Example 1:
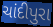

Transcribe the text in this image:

ચાંદીપુરા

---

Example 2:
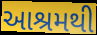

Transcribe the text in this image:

આશ્રમથી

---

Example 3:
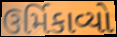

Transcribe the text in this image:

ઉર્મિકાવ્યો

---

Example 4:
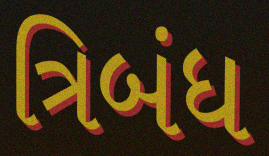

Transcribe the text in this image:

ત્રિબંધ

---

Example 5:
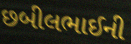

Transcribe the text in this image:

છબીલભાઈની